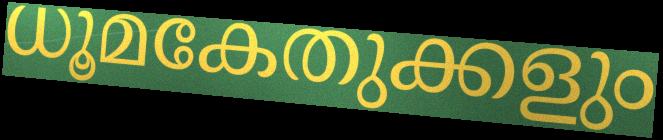
ധൂമകേതുക്കളും